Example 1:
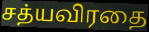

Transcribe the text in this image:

சத்யவிரதை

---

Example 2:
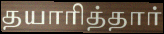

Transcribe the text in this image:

தயாரித்தார்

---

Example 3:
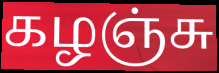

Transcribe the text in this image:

கழஞ்சு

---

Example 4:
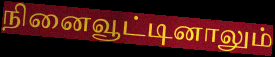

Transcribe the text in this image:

நினைவூட்டினாலும்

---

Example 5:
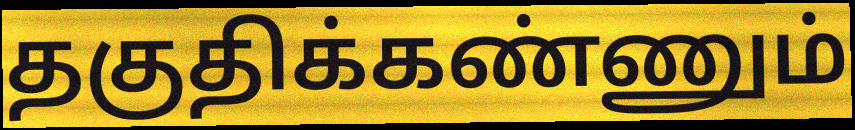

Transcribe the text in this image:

தகுதிக்கண்ணும்